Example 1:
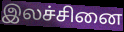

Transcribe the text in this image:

இலச்சினை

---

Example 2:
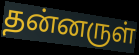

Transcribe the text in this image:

தன்னருள்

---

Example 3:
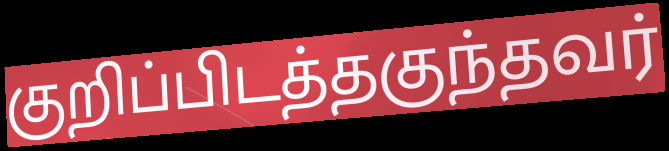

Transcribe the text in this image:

குறிப்பிடத்தகுந்தவர்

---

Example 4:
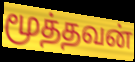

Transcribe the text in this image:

மூத்தவன்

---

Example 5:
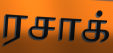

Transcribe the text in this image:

ரசாக்